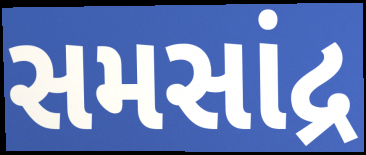
સમસાંદ્ર